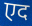
एद